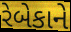
રેબેકાને